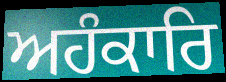
ਅਹੰਕਾਰਿ